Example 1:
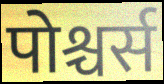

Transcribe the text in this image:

पोश्चर्स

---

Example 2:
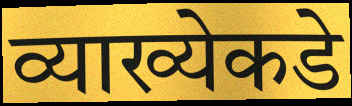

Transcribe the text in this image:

व्याख्येकडे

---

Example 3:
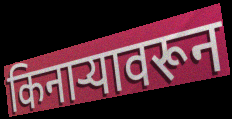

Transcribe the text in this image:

किनाऱ्यावरून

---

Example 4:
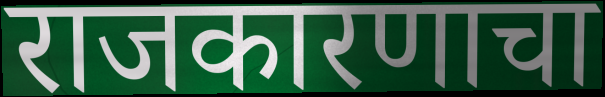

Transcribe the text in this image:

राजकारणाचा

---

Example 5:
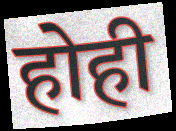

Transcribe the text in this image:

होही